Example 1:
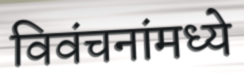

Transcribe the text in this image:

विवंचनांमध्ये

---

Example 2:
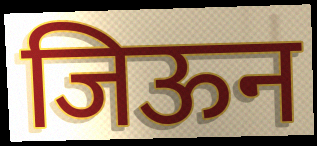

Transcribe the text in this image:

जिऊन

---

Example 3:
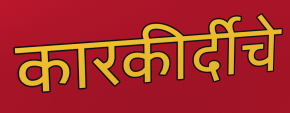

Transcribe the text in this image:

कारकीर्दीचे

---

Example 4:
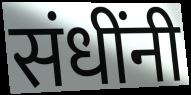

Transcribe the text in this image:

संधींनी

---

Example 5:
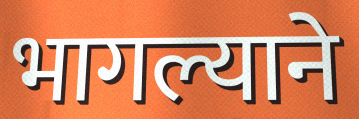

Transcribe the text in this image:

भागल्याने